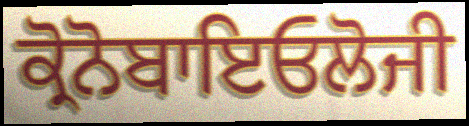
ਕ੍ਰੋਨੋਬਾਇਓਲੋਜੀ